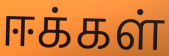
ஈக்கள்